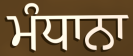
ਮੰਧਾਨਾ